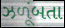
ઝળૂંબતા